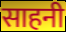
साहनी